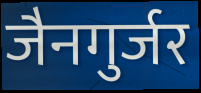
जैनगुर्जर